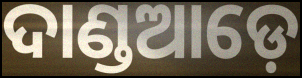
ଦାଣ୍ଡଆଡ଼େ